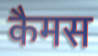
कैमस